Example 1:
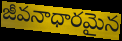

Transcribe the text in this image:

జీవనాధారమైన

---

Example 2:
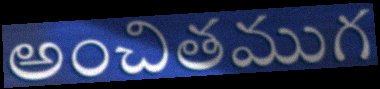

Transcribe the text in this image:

అంచితముగ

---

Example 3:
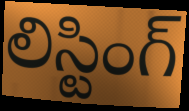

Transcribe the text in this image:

లిస్టింగ్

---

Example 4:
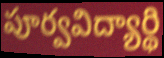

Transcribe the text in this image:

పూర్వవిద్యార్థి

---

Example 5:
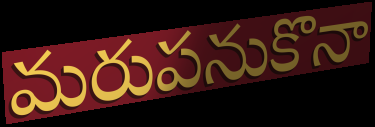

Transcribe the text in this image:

మరుపనుకొనా